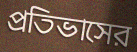
প্রতিভাসের